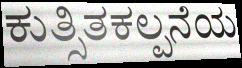
ಕುತ್ಸಿತಕಲ್ಪನೆಯ